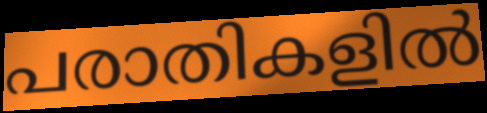
പരാതികളിൽ